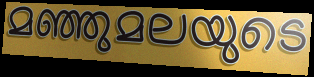
മഞ്ഞുമലയുടെ